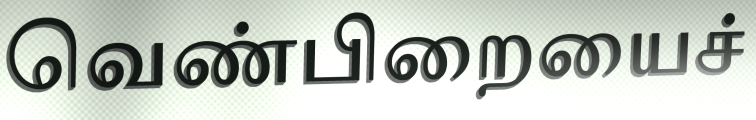
வெண்பிறையைச்